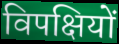
विपक्षियों